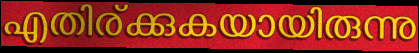
എതിര്ക്കുകയായിരുന്നു